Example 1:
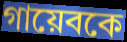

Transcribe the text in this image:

গায়েবকে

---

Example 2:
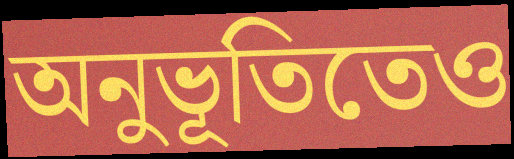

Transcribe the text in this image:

অনুভূতিতেও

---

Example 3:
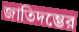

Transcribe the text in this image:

জাতিদম্ভের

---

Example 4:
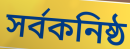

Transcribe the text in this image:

সর্বকনিষ্ঠ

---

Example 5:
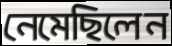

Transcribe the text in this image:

নেমেছিলেন